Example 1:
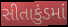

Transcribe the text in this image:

સીતાકુંડમાં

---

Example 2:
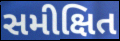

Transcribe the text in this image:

સમીક્ષિત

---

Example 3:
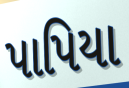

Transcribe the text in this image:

પાપિયા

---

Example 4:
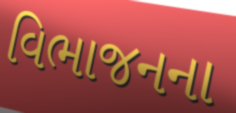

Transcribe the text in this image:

વિભાજનના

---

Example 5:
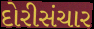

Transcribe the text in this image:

દોરીસંચાર